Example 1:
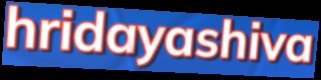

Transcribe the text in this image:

hridayashiva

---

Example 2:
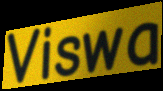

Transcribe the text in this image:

Viswa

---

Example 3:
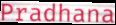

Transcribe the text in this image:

Pradhana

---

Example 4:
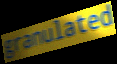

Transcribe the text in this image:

granulated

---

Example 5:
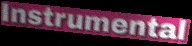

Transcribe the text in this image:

Instrumental